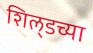
शिल्डच्या